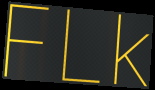
FLk